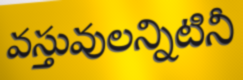
వస్తువులన్నిటినీ